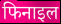
फिनाइल